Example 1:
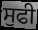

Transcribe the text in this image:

ਸੁਫੀ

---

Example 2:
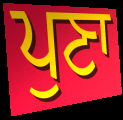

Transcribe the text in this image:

ਪੁਣਾ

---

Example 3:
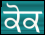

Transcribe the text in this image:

ਕੋਕ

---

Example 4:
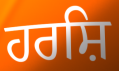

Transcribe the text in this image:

ਹਰਸ਼ਿ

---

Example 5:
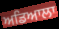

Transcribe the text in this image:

ਅਡਿਆਲਾ